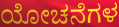
ಯೋಚನೆಗಳ